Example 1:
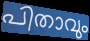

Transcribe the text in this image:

പിതാവും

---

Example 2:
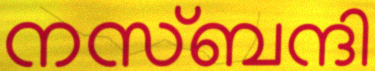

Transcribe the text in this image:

നസ്ബന്ദി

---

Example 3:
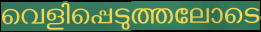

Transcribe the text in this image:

വെളിപ്പെടുത്തലോടെ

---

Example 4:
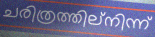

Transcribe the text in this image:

ചരിത്രത്തില്നിന്ന്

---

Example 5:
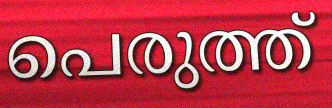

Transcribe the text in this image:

പെരുത്ത്